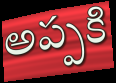
అప్పకి